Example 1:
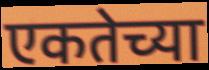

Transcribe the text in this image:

एकतेच्या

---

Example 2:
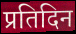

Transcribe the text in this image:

प्रतिदिन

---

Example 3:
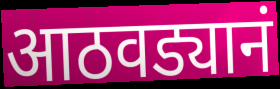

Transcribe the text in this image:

आठवड्यानं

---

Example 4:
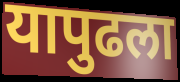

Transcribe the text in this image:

यापुढला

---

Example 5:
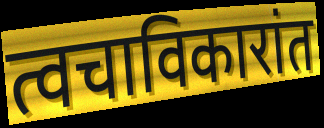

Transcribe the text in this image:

त्वचाविकारांत